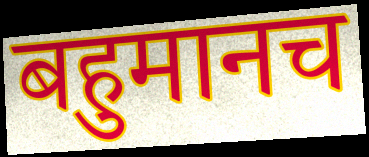
बहुमानच